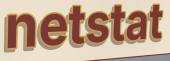
netstat